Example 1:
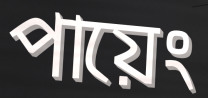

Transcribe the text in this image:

পায়েং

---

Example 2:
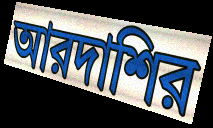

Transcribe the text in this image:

আরদাশির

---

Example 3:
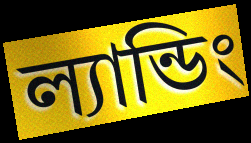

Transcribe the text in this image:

ল্যান্ডিং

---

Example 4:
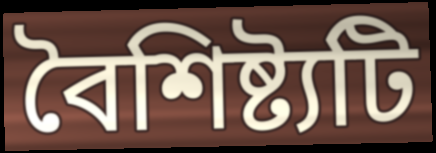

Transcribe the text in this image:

বৈশিষ্ট্যটি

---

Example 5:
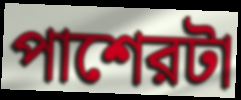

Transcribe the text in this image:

পাশেরটা